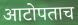
आटोपताच